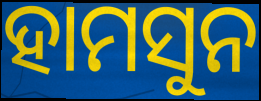
ହାମସୁନ